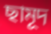
ছামূদ